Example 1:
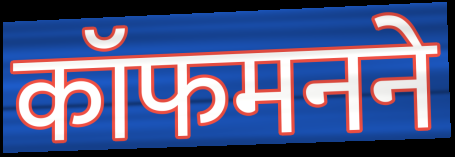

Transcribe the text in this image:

कॉफमनने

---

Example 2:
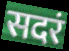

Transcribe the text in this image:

सदरं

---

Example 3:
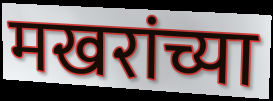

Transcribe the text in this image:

मखरांच्या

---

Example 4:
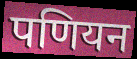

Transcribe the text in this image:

पणियन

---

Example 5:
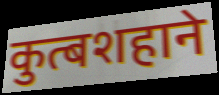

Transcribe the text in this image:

कुत्बशहाने